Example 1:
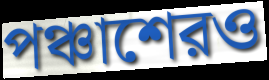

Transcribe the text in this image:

পঞ্চাশেরও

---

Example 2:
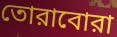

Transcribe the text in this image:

তোরাবোরা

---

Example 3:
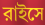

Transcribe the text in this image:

রাইসে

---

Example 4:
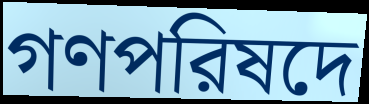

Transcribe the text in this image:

গণপরিষদে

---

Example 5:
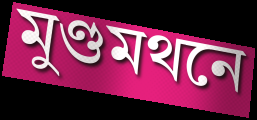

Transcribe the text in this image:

মুণ্ডমথনে